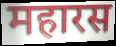
महारस